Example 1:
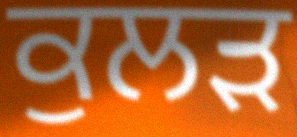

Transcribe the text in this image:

ਕੁਲੜ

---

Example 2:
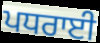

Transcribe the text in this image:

ਪਧਰਾਈ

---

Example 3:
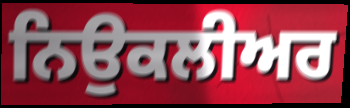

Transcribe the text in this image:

ਨਿਉਕਲੀਅਰ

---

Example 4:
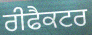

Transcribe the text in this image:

ਰੀਫੈਕਟਰ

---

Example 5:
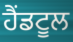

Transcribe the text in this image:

ਹੈਂਡਟੂਲ